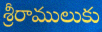
శ్రీరాములుకు